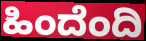
ಹಿಂದೆಂದಿ